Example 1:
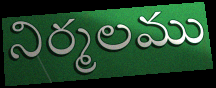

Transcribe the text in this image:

నిర్మలము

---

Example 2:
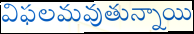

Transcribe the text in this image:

విఫలమవుతున్నాయి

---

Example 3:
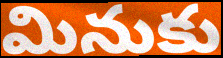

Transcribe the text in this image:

మినుకు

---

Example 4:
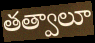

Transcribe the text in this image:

తత్వాలూ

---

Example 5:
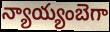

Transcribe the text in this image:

న్యాయ్యంబెగా